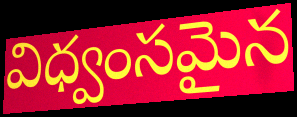
విధ్వంసమైన